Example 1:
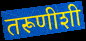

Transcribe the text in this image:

तरूणीशी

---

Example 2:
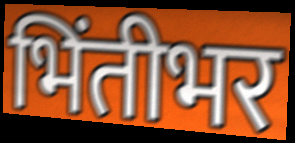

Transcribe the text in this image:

भिंतीभर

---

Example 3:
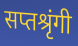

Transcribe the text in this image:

सप्तश्रृंगी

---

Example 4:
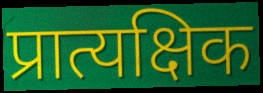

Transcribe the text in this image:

प्रात्यक्षिक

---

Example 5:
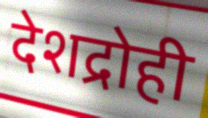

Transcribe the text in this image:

देशद्रोही